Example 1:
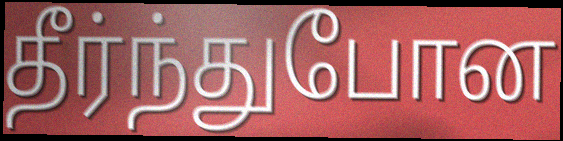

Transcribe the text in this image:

தீர்ந்துபோன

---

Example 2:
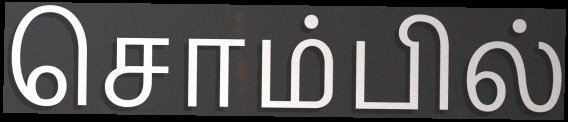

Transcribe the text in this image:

சொம்பில்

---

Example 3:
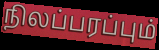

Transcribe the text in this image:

நிலப்பரப்பும்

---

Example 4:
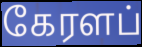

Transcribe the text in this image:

கேரளப்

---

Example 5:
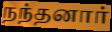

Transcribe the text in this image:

நந்தனார்